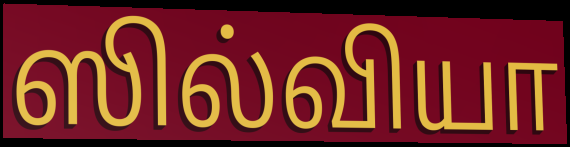
ஸில்வியா